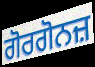
ਗੋਰਗੋਨਜ਼